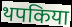
थपकिया